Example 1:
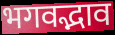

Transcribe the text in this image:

भगवद्भाव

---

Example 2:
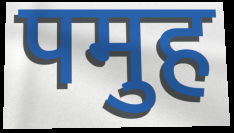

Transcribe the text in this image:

पमुह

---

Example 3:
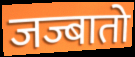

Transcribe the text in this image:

जज्बातो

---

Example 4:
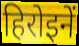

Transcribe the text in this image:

हिरोइनें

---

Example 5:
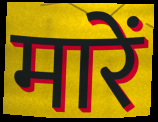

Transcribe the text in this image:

मारें